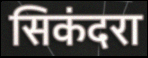
सिकंदरा